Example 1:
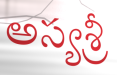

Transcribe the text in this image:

అస్యశ్రీ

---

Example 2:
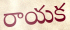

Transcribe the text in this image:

రాయక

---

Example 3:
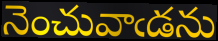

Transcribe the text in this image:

నెంచువాఁడను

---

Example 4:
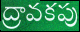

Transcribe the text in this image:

ద్రావకపు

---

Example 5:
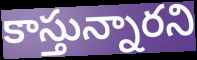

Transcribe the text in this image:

కాస్తున్నారని